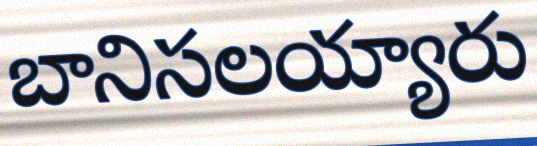
బానిసలయ్యారు